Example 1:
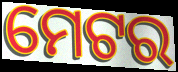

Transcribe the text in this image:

ମେଟର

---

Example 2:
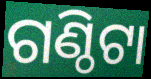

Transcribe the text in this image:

ଗଣ୍ଠିଟା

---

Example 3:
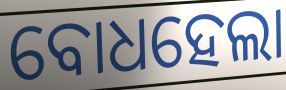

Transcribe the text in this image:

ବୋଧହେଲା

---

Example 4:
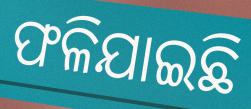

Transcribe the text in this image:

ଫଳିଯାଇଛି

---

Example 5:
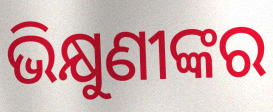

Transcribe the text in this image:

ଭିକ୍ଷୁଣୀଙ୍କର